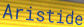
Aristide